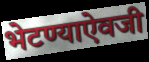
भेटण्याऐवजी